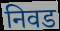
निवड